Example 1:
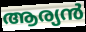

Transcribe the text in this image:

ആര്യൻ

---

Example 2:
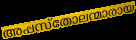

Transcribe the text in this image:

അപ്പസ്‌തോലന്മാരായ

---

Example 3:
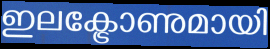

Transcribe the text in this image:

ഇലക്ട്രോണുമായി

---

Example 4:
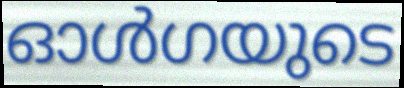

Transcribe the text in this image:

ഓൾഗയുടെ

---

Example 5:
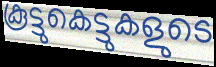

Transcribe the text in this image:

കൂട്ടുകെട്ടുകളുടെ